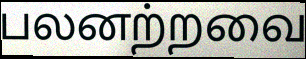
பலனற்றவை